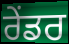
ਰੇੰਡਰ